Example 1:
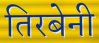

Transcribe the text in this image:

तिरबेनी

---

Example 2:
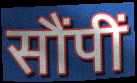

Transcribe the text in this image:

सौंपीं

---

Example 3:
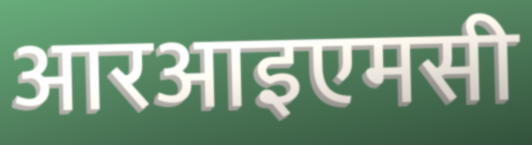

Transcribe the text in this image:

आरआइएमसी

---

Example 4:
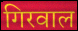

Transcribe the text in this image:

गिरवाल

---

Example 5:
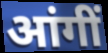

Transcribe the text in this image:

आंगीं